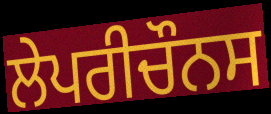
ਲੇਪਰੀਚੌਨਸ